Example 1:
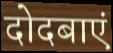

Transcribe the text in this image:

दोदबाएं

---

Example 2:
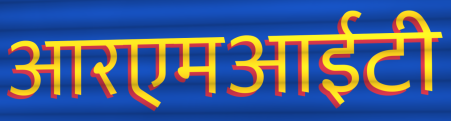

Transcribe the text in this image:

आरएमआईटी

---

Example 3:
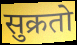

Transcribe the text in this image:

सुक्रतो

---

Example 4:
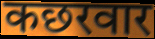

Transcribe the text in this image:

कछरवार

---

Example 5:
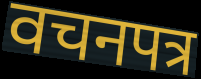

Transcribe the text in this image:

वचनपत्र